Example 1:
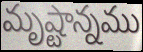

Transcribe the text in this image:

మృష్టాన్నము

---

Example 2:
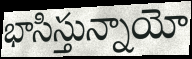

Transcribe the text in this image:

భాసిస్తున్నాయో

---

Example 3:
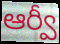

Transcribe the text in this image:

ఆర్వీ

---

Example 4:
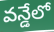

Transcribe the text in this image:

వన్డేలో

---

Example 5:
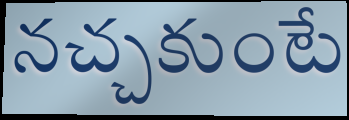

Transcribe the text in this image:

నచ్చకుంటే